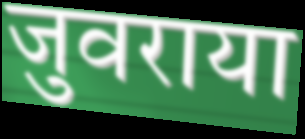
जुवराया